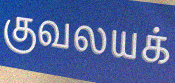
குவலயக்